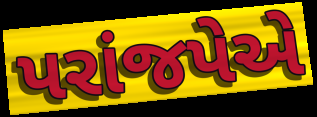
પરાંજપેએ